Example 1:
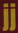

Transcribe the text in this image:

jj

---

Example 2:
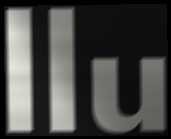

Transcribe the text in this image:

llu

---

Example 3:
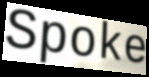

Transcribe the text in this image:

Spoke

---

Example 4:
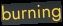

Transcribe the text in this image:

burning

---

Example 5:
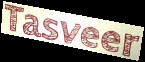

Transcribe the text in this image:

Tasveer